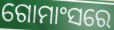
ଗୋମାଂସରେ